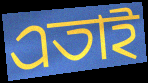
এতাই